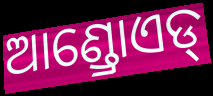
ଆଣ୍ଡ୍ରୋଏଡ୍